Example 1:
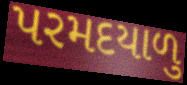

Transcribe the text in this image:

પરમદયાળુ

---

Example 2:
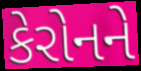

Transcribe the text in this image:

કેરોનને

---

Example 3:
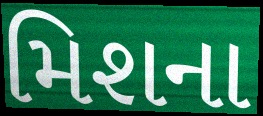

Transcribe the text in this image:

મિશના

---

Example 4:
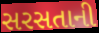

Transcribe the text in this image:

સરસતાની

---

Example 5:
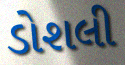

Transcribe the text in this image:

ડોશલી